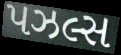
પઝલ્સ